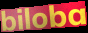
biloba